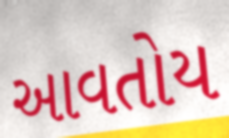
આવતોય